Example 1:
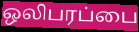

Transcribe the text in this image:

ஒலிபரப்பை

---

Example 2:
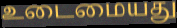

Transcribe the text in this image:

உடைமையது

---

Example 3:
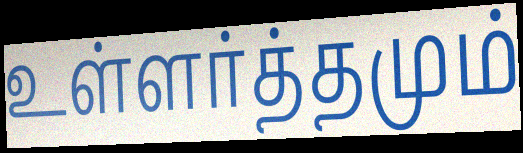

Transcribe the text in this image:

உள்ளர்த்தமும்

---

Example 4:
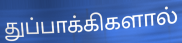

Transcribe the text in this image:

துப்பாக்கிகளால்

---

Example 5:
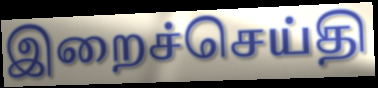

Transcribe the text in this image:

இறைச்செய்தி